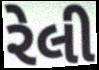
રેલી